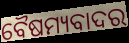
ବୈଷମ୍ୟବାଦର